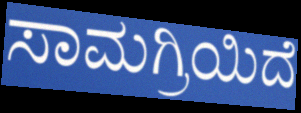
ಸಾಮಗ್ರಿಯಿದೆ